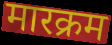
मारक्रम